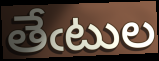
తేఁటుల